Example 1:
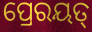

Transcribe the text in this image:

ପ୍ରେରୟତ୍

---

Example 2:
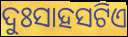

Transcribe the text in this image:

ଦୁଃସାହସଟିଏ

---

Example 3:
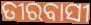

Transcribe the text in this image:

ତୀରବାସୀ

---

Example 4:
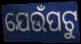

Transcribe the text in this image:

ଯେଉଁପଟୁ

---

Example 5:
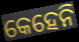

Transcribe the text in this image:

କେହେନି